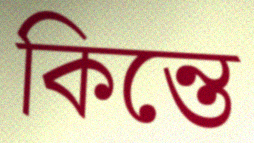
কিন্তে